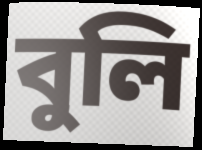
বুলি